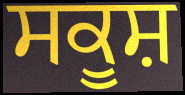
ਸਕੂਸ਼